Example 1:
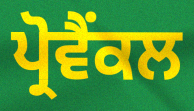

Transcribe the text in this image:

ਪ੍ਰੋਵੈਂਕਲ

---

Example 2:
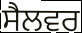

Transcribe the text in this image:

ਸੈਲਵਰ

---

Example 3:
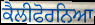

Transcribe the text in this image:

ਕੈਲੀਫੋਰਨਿਆ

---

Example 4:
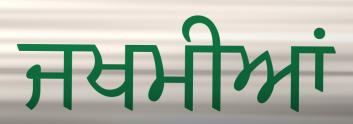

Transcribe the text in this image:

ਜਖਮੀਆਂ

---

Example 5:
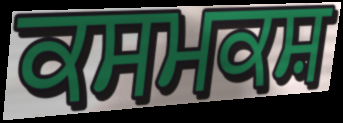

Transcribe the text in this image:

ਕਸਮਕਸ਼